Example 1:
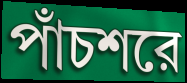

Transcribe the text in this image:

পাঁচশরে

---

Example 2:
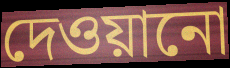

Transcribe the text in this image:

দেওয়ানো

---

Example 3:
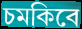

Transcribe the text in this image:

চমকিবে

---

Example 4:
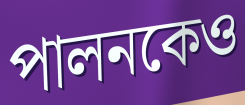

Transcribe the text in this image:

পালনকেও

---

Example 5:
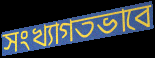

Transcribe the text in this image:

সংখ্যাগতভাবে